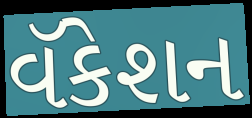
વૅકેશન